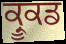
ਕ੍ਰੂਕਡ